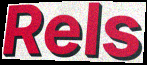
Rels